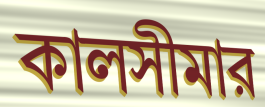
কালসীমার